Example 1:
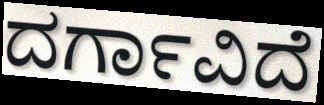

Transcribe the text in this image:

ದರ್ಗಾವಿದೆ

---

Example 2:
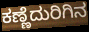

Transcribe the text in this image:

ಕಣ್ಣೆದುರಿಗಿನ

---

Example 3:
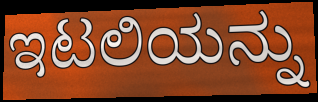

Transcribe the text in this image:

ಇಟಲಿಯನ್ನು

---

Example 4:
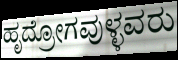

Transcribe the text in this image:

ಹೃದ್ರೋಗವುಳ್ಳವರು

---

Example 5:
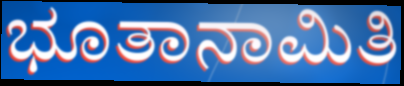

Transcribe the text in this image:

ಭೂತಾನಾಮಿತಿ